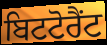
ਬਿਟਟੋਰੈਂਟ